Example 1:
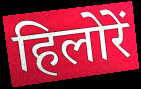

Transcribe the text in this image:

हिलोरें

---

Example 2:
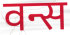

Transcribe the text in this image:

वन्स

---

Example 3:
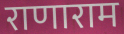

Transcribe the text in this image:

राणाराम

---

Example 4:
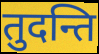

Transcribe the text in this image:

तुदन्ति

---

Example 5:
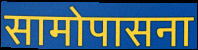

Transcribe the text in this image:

सामोपासना